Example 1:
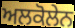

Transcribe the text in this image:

ਅਲਕੋਲੇਨ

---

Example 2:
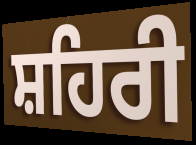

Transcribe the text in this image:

ਸ਼ਹਿਰੀ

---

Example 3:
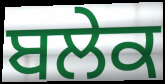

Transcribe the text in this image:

ਬਲੇਕ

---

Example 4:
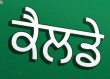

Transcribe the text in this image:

ਕੈਲਡੇ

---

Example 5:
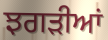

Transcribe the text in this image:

ਝਗੜੀਆਂ